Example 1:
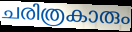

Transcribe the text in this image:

ചരിത്രകാരും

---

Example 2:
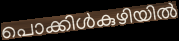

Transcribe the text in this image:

പൊക്കിൾകുഴിയിൽ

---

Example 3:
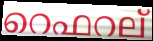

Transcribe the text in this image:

റെഫറല്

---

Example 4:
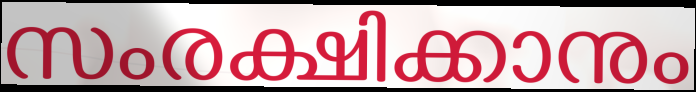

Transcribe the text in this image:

സംരക്ഷിക്കാനും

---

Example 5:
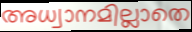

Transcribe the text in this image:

അധ്വാനമില്ലാതെ